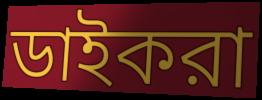
ডাইকরা